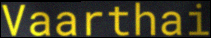
Vaarthai